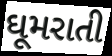
ઘૂમરાતી